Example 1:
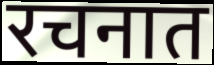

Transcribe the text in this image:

रचनात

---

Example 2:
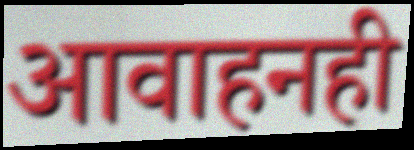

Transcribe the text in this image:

आवाहनही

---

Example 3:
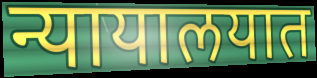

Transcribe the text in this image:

न्यायालयात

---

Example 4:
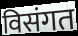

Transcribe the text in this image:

विसंगत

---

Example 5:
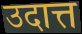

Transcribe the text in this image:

उदात्त